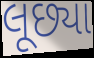
લૂછ્યા